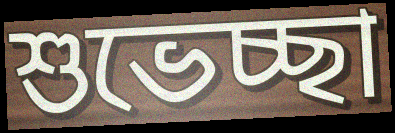
শুভেচ্ছা